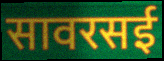
सावरसई